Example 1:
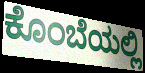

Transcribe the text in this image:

ಕೊಂಬೆಯಲ್ಲಿ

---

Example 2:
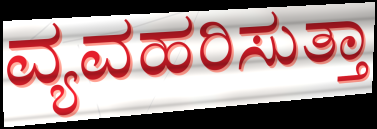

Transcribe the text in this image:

ವ್ಯವಹರಿಸುತ್ತಾ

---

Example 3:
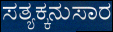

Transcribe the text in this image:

ಸತ್ಯಕ್ಕನುಸಾರ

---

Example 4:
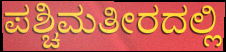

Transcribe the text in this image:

ಪಶ್ಚಿಮತೀರದಲ್ಲಿ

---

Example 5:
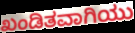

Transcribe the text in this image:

ಖಂಡಿತವಾಗಿಯು